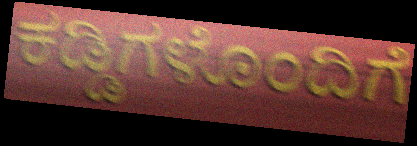
ಕಡ್ಡಿಗಳೊಂದಿಗೆ